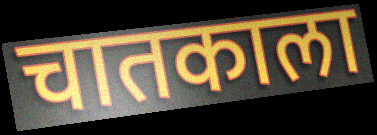
चातकाला